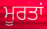
ਮੂਰਤਾਂ